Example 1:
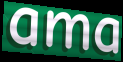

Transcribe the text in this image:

ama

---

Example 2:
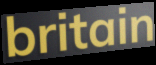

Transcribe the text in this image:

britain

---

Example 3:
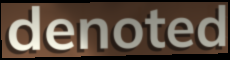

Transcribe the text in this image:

denoted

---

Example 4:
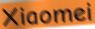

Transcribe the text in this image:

Xiaomei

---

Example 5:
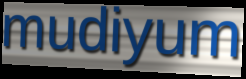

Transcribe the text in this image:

mudiyum